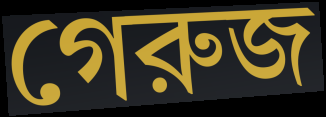
গেরুজ